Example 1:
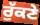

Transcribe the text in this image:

ਰੁੱਕਣੇ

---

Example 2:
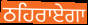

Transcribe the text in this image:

ਠਹਿਰਾਏਗਾ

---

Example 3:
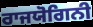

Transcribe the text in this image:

ਰਾਜਯੋਗਿਨੀ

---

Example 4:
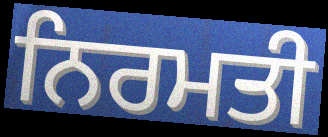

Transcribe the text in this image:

ਨਿਰਮਤੀ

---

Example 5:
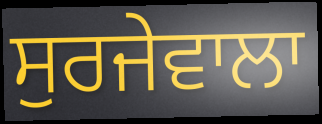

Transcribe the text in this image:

ਸੁਰਜੇਵਾਲਾ